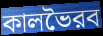
কালভৈরব